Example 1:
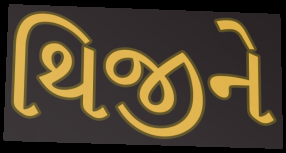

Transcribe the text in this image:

થિજીને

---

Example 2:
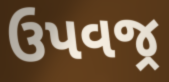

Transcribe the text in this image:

ઉપવજ્ર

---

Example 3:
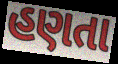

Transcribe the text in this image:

હણતા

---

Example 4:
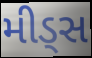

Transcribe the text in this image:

મીડ્સ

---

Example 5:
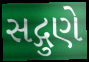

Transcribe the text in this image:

સદ્ગુણે